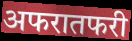
अफरातफरी